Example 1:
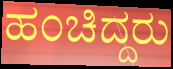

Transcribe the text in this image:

ಹಂಚಿದ್ದರು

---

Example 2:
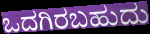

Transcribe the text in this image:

ಒದಗಿರಬಹುದು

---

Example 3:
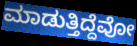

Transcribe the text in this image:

ಮಾಡುತ್ತಿದ್ದೆವೋ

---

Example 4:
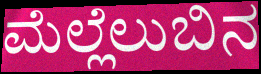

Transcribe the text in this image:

ಮೆಲ್ಲೆಲುಬಿನ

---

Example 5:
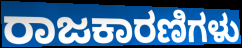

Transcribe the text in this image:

ರಾಜಕಾರಣಿಗಳು